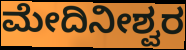
ಮೇದಿನೀಶ್ವರ